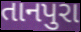
તાનપુરા